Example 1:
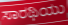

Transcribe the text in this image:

ಸಾರಥಿಯು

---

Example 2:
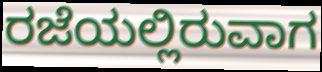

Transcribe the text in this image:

ರಜೆಯಲ್ಲಿರುವಾಗ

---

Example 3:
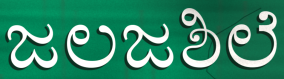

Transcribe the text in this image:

ಜಲಜಶಿಲೆ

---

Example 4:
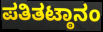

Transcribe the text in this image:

ಪತಿತಟ್ಠಾನಂ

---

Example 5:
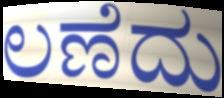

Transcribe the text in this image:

ಲಣೆದು